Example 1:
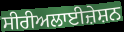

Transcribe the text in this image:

ਸੀਰੀਅਲਾਈਜ਼ੇਸ਼ਨ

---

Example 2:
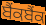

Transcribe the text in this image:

ਬੈਂਕਬੈਂਕ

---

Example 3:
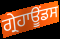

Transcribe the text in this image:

ਗ੍ਰੇਹਾਊਂਡਸ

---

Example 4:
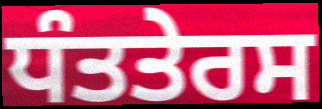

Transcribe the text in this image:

ਧੰਤਤੇਰਸ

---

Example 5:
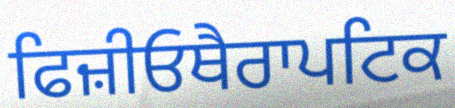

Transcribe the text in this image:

ਫਿਜ਼ੀਓਥੈਰਾਪਟਿਕ